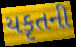
યકૃતની